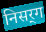
निसर्ग